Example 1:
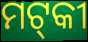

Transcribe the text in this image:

ମଟ୍‌କୀ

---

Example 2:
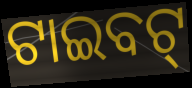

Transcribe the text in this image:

ଟାଇବଟ୍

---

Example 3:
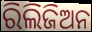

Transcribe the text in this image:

ରିଲିଜିଅନ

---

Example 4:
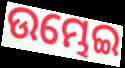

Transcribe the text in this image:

ଉମ୍ଭେଇ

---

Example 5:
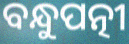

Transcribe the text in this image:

ବନ୍ଧୁପତ୍ନୀ